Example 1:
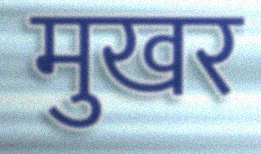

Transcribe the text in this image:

मुखर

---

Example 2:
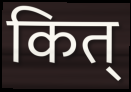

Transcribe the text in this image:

कित्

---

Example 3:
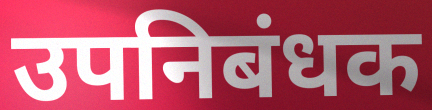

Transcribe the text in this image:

उपनिबंधक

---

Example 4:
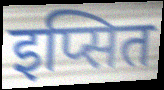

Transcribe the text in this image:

इप्सित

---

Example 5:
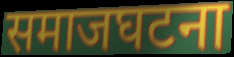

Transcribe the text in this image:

समाजघटना